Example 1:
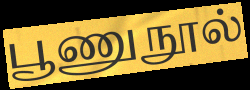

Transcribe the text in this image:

பூணுநூல்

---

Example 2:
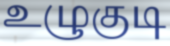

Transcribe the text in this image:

உழுகுடி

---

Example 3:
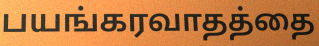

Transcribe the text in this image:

பயங்கரவாதத்தை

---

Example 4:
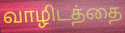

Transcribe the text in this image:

வாழிடத்தை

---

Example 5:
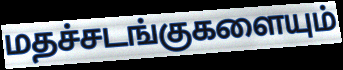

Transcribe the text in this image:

மதச்சடங்குகளையும்